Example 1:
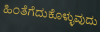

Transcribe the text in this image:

ಹಿಂತೆಗೆದುಕೊಳ್ಳುವುದು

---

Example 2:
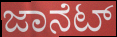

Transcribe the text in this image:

ಜಾನೆಟ್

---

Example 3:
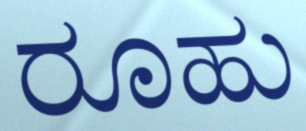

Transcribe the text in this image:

ರೂಹು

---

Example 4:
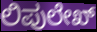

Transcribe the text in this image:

ಲಿಪುಲೇಖ್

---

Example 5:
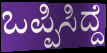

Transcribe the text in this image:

ಒಪ್ಪಿಸಿದ್ದೆ